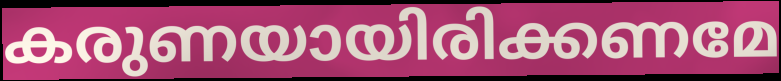
കരുണയായിരിക്കണമേ